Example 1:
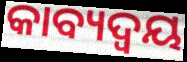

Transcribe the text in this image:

କାବ୍ୟଦ୍ୱୟ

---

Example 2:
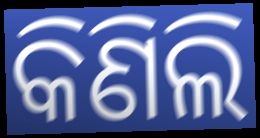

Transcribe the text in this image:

କିଣିଲି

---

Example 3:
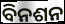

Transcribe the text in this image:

ବିନଶନ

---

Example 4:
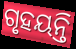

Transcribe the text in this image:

ଗୃହୟନ୍ତି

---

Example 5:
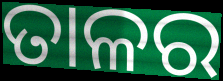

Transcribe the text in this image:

ତାଳର